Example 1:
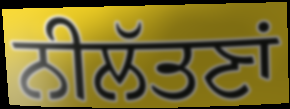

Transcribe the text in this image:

ਨੀਲੱਤਣਾਂ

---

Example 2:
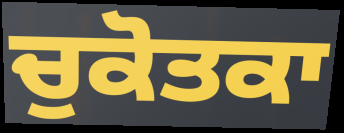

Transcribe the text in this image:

ਚੁਕੋਤਕਾ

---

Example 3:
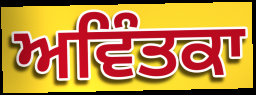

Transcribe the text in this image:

ਅਵਿੰਤਕਾ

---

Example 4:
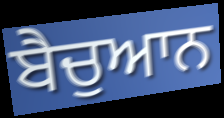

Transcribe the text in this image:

ਬੈਚੁਆਨ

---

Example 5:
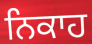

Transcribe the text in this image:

ਨਿਕਾਹ